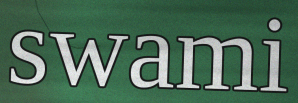
swami